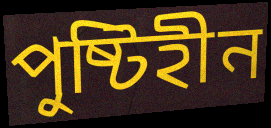
পুষ্টিহীন